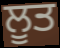
ਲੂਤ